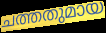
ചത്തതുമായ